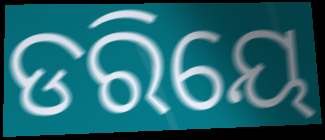
ଡରିୟେ